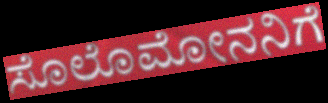
ಸೊಲೊಮೋನನಿಗೆ